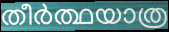
തീർത്ഥയാത്ര